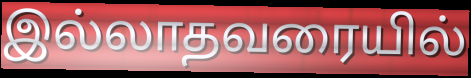
இல்லாதவரையில்